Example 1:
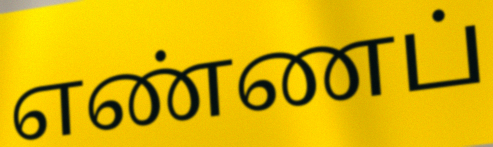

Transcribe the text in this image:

எண்ணப்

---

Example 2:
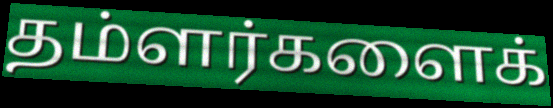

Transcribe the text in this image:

தம்ளர்களைக்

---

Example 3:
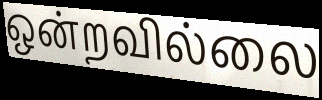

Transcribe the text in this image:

ஒன்றவில்லை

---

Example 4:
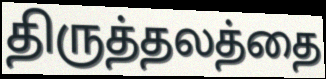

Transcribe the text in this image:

திருத்தலத்தை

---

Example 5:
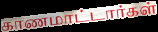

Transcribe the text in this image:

காணமாட்டார்கள்